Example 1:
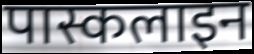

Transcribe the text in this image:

पास्कलाइन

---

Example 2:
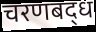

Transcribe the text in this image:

चरणबद्ध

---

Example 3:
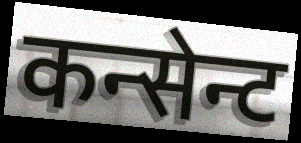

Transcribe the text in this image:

कन्सेन्ट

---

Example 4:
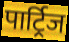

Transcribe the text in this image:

पार्ट्रिज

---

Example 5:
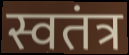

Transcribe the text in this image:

स्‍वतंत्र